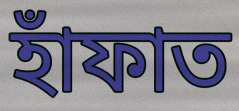
হাঁফাত